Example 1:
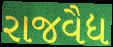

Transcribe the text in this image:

રાજવૈદ્ય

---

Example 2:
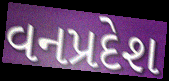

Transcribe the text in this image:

વનપ્રદેશ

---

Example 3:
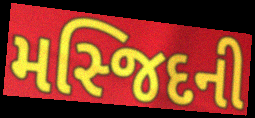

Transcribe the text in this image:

મસ્જિદની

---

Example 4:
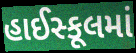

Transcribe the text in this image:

હાઈસ્કૂલમાં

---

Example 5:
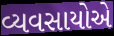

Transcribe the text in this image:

વ્યવસાયોએ